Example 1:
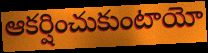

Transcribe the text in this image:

ఆకర్షించుకుంటాయో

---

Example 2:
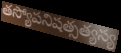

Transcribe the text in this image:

తస్యోపనిషత్సత్యస్య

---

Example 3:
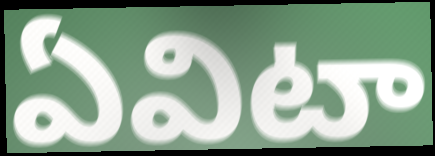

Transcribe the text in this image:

ఏవిటా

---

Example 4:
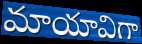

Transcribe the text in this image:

మాయావిగా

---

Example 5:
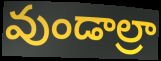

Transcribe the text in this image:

వుండాల్రా